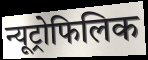
न्यूट्रोफिलिक